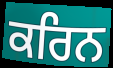
ਕਰਿਨ